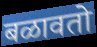
बळावतो